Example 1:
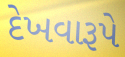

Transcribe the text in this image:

દેખવારૂપે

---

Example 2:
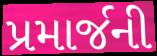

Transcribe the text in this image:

પ્રમાર્જની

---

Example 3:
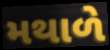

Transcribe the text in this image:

મથાળે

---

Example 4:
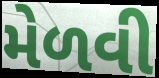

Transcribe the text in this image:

મેળવી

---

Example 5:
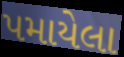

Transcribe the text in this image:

પમાયેલા